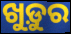
ଖୁଡ଼ୁର